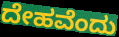
ದೇಹವೆಂದು